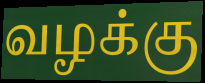
வழக்கு